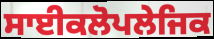
ਸਾਈਕਲੋਪਲੇਜਿਕ